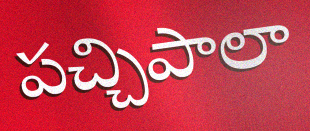
పచ్చిపాలా